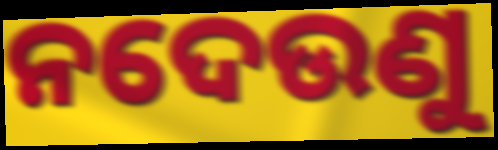
ନଦେଉଣୁ